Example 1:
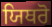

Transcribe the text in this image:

ਯਿਥਰੋ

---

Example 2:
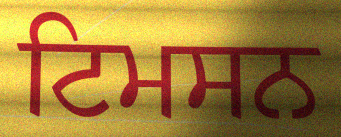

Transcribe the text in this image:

ਟਿਮਸਨ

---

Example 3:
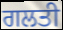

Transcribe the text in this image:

ਗਲਤੀ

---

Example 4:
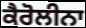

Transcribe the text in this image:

ਕੈਰੋਲੀਨਾ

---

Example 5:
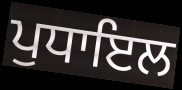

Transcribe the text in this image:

ਪੁਧਾਇਲ